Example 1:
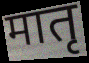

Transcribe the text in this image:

मातृ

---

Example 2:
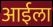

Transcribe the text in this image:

आईला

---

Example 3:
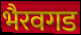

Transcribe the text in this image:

भैरवगड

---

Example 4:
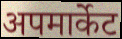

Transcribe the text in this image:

अपमार्केट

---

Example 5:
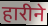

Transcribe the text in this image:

हारीने